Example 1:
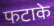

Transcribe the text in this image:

फटाके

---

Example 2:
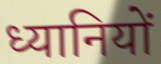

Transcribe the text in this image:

ध्यानियों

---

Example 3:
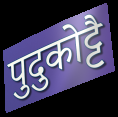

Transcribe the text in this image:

पुदुकोट्टै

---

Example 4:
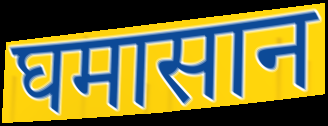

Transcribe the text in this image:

घमासान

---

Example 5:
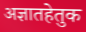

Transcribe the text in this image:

अज्ञातहेतुक